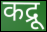
कद्रू